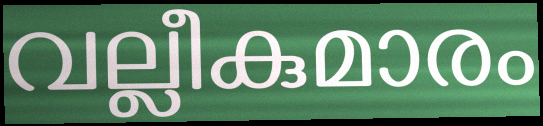
വല്ലീകുമാരം